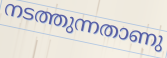
നടത്തുന്നതാണു